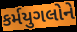
કર્મયુગલોને